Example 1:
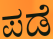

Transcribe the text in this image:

ಪಡೆ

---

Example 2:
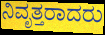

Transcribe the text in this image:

ನಿವೃತ್ತರಾದರು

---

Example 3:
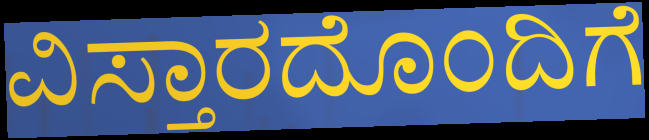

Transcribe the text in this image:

ವಿಸ್ತಾರದೊಂದಿಗೆ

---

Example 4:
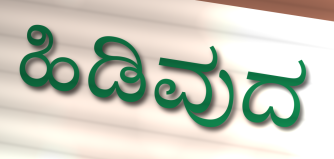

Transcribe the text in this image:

ಹಿಡಿವುದ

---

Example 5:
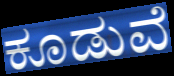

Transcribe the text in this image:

ಕೂಡುವೆ